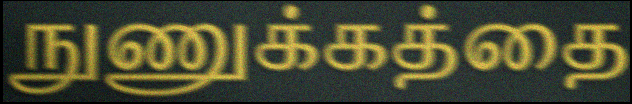
நுணுக்கத்தை